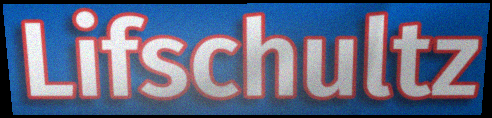
Lifschultz